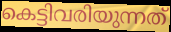
കെട്ടിവരിയുന്നത്